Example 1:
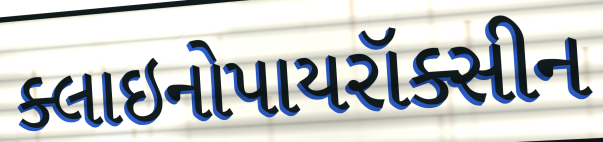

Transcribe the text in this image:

ક્લાઇનોપાયરૉક્સીન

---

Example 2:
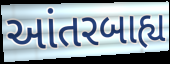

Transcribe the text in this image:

આંતરબાહ્ય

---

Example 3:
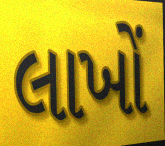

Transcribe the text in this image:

લાખોં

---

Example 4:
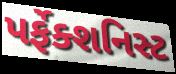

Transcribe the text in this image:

પર્ફેક્શનિસ્ટ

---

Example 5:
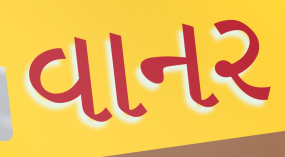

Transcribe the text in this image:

વાનર